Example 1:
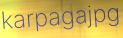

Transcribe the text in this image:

karpagajpg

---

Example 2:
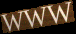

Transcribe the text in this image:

WWW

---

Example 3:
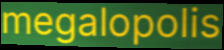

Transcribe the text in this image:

megalopolis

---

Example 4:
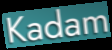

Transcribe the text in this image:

Kadam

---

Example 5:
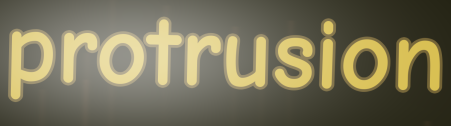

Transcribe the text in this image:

protrusion